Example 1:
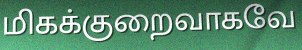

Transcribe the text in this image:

மிகக்குறைவாகவே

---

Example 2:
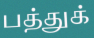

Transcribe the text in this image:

பத்துக்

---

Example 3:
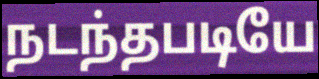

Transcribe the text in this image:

நடந்தபடியே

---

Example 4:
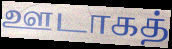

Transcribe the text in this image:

ஊடாகத்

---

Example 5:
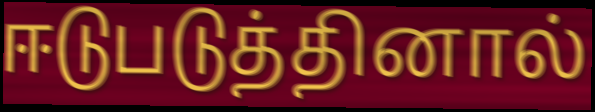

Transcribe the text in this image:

ஈடுபடுத்தினால்